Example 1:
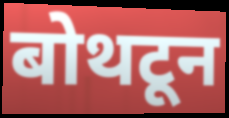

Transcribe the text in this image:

बोथटून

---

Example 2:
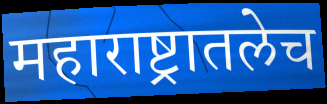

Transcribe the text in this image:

महाराष्ट्रातलेच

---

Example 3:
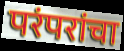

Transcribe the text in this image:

परंपरांचा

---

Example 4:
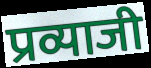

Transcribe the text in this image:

प्रव्याजी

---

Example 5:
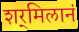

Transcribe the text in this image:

शर्मिलानं